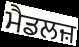
ਮੈਡਲਜ਼